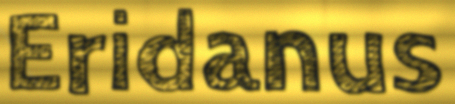
Eridanus